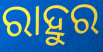
ରାହୁର